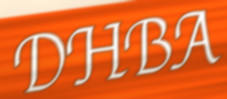
DHBA